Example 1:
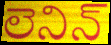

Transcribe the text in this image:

లెనిన్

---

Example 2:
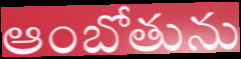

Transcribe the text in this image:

ఆంబోతును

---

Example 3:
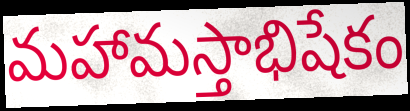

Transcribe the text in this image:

మహామస్తాభిషేకం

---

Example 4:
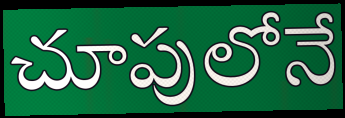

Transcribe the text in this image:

చూపులోనే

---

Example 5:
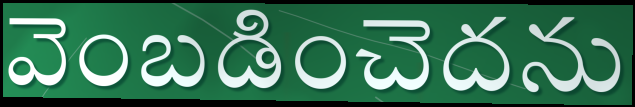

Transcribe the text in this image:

వెంబడించెదను